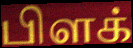
பிளக்